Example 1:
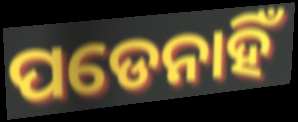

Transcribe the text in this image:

ପଡେନାହିଁ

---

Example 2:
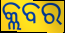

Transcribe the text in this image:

କ୍ଲବର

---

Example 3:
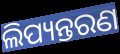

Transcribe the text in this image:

ଲିପ୍ୟନ୍ତରଣ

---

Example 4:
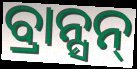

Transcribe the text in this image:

ବ୍ରାନ୍ସନ୍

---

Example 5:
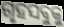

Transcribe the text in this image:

ଗୃହସବୁକୁ